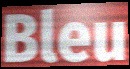
Bleu